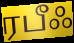
ரபீஃ